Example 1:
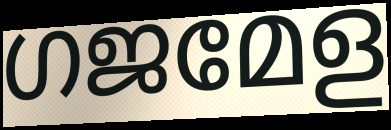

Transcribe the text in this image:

ഗജമേള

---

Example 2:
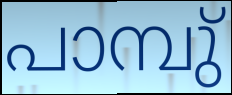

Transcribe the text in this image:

പാമ്പു്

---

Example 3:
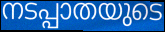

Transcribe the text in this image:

നടപ്പാതയുടെ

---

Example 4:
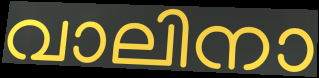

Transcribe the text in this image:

വാലിനാ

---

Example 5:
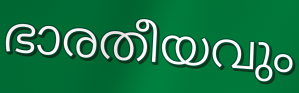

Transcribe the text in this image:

ഭാരതീയവും